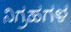
ನಿಗ್ರಹಗಳ